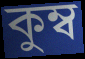
কুম্ব